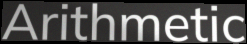
Arithmetic